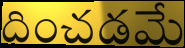
దించడమే